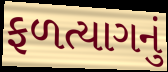
ફળત્યાગનું